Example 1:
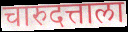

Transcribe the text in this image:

चारुदत्ताला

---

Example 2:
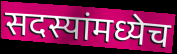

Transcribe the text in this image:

सदस्यांमध्येच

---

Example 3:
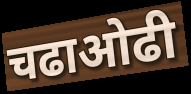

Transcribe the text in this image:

चढाओढी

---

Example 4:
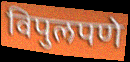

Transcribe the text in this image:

विपुलपणे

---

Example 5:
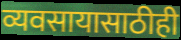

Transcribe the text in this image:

व्यवसायासाठीही